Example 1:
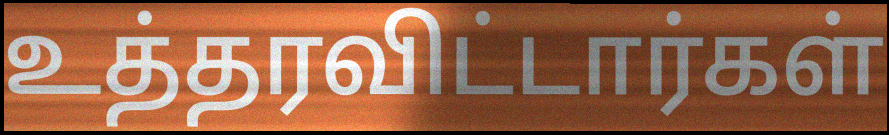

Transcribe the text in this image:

உத்தரவிட்டார்கள்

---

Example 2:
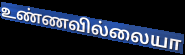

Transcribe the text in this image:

உண்ணவில்லையா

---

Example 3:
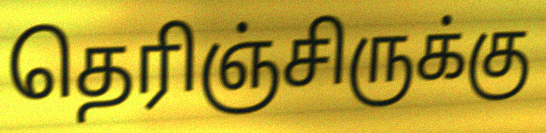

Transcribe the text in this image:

தெரிஞ்சிருக்கு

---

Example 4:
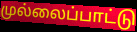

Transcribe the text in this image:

முல்லைப்பாட்டு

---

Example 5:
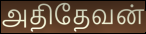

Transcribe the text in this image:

அதிதேவன்